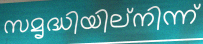
സമൃദ്ധിയില്നിന്ന്